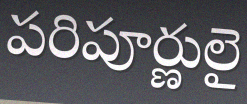
పరిపూర్ణులై